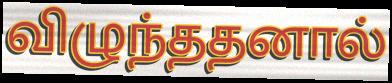
விழுந்ததனால்